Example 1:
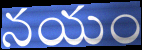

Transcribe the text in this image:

నయం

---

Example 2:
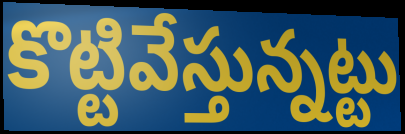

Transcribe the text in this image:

కొట్టివేస్తున్నట్టు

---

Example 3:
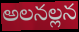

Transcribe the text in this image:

అలనల్లన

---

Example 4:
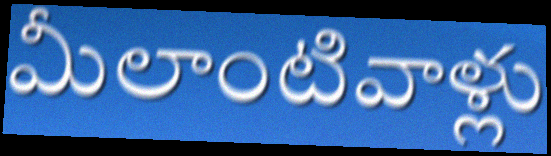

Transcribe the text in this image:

మీలాంటివాళ్లు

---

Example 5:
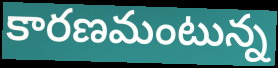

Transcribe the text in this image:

కారణమంటున్న